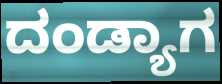
ದಂಡ್ಯಾಗ